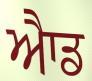
ਐਾਡ